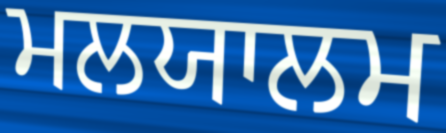
ਮਲਯਾਲਮ